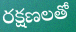
రక్షణలతో